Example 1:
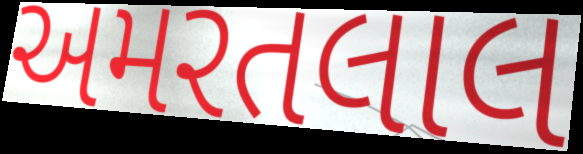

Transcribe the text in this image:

અમરતલાલ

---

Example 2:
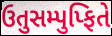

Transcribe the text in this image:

ઉતુસમ્પુપ્ફિતે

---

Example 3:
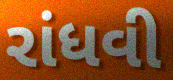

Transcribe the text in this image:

રાંધવી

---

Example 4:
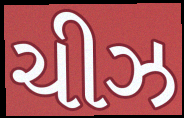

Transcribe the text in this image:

ચીઝ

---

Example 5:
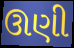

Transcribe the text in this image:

ઊણી